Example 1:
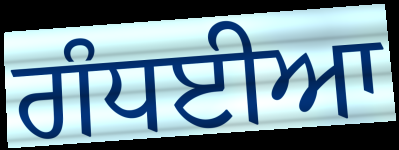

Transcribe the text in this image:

ਗੰਧਈਆ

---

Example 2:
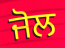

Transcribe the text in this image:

ਜੋਲ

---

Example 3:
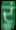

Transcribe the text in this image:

ਦੂਂ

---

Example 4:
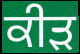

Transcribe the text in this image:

ਕੀੜ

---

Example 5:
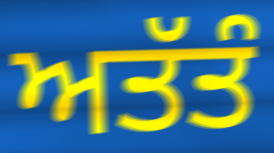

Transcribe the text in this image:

ਅਤੱਤੰ